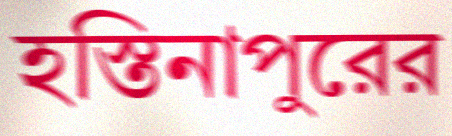
হস্তিনাপুরের